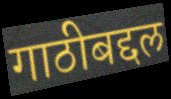
गाठीबद्दल